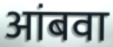
आंबवा